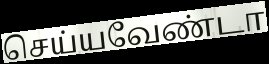
செய்யவேண்டா